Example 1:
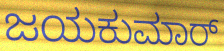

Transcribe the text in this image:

ಜಯಕುಮಾರ್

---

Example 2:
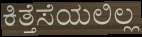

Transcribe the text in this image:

ಕಿತ್ತೆಸೆಯಲಿಲ್ಲ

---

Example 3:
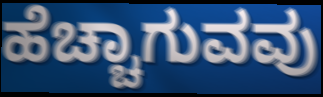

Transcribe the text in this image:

ಹೆಚ್ಚಾಗುವವು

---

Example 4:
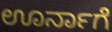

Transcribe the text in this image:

ಊರ್ನಾಗೆ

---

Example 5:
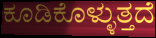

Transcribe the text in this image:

ಕೂಡಿಕೊಳ್ಳುತ್ತದೆ